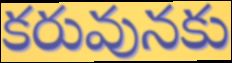
కరువునకు